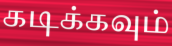
கடிக்கவும்